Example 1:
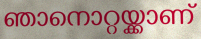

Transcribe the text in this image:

ഞാനൊറ്റയ്ക്കാണ്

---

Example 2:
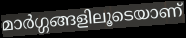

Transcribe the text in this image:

മാർഗ്ഗങ്ങളിലൂടെയാണ്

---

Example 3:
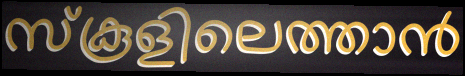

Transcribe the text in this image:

സ്കൂളിലെത്താൻ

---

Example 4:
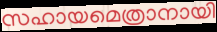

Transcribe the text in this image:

സഹായമെത്രാനായി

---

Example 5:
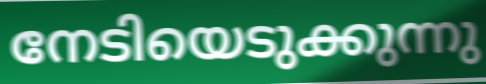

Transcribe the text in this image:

നേടിയെടുക്കുന്നു